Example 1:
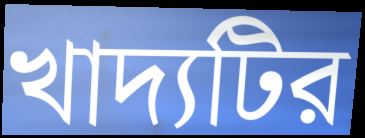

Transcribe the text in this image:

খাদ্যটির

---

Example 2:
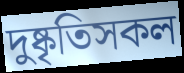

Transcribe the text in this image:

দুষ্কৃতিসকল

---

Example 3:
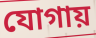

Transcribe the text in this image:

যোগায়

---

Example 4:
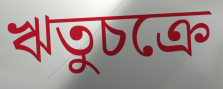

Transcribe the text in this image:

ঋতুচক্রে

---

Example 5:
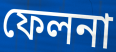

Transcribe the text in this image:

ফেলনা